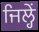
ਜਿਲ੍ਹੇਂ